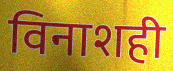
विनाशही